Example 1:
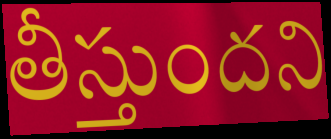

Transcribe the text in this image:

తీస్తుందని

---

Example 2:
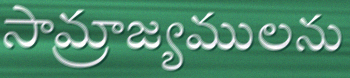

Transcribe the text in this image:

సామ్రాజ్యములను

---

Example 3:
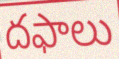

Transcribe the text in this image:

దఫాలు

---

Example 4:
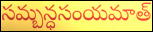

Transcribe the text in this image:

సమ్బన్ధసంయమాత్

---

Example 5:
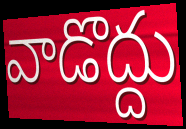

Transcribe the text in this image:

వాడొద్దు